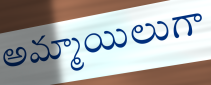
అమ్మాయిలుగా